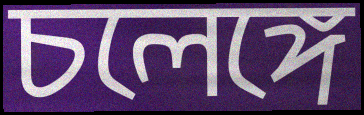
চলেঙ্গে